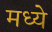
मध्ये